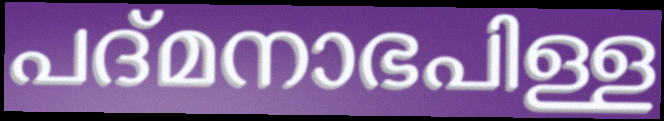
പദ്മനാഭപിള്ള